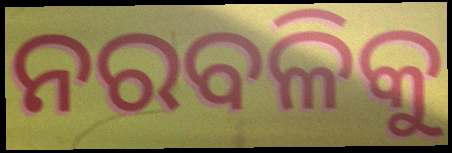
ନରବଳିକୁ